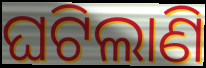
ଘଟିଲାଣି